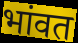
भांवत